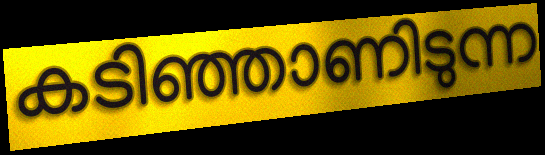
കടിഞ്ഞാണിടുന്ന